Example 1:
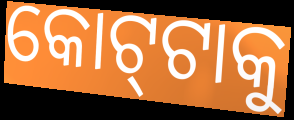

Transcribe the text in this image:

କୋଟ୍‌ଟାକୁ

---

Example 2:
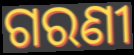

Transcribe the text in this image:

ଗରଣୀ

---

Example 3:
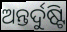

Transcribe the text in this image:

ଅନ୍ତର୍ଦୁଷ୍ଟି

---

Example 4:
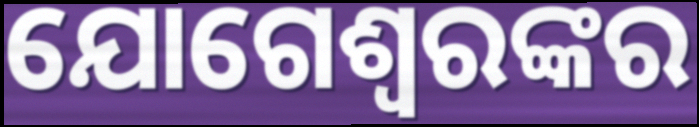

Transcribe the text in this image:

ଯୋଗେଶ୍ଵରଙ୍କର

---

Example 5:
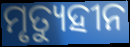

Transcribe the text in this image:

ମୃତ୍ୟୁହୀନ